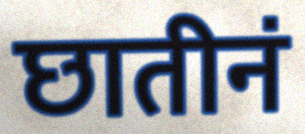
छातीनं